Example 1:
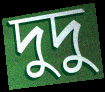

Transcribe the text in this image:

দুদু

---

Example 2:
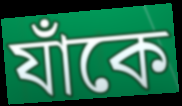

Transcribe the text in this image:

যাঁকে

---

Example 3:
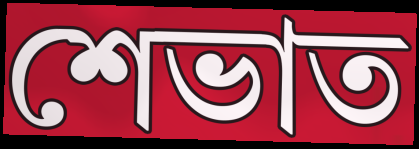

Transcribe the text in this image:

শেভাত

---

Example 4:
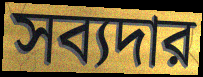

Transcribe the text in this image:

সব্যদার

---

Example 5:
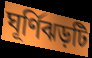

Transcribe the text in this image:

ঘূর্ণিঝড়টি